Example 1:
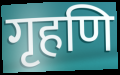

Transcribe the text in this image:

गृहणि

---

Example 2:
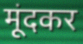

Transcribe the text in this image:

मूंदकर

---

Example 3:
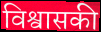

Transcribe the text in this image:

विश्वासकी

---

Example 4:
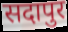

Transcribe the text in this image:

सदापुर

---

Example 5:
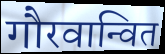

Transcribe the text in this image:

गौरवान्वित